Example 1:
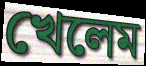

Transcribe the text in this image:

খেলেম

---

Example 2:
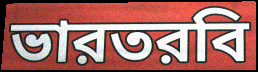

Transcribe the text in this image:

ভারতরবি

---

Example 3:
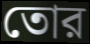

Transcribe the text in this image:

তোর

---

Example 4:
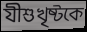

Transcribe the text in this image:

যীশুখৃষ্টকে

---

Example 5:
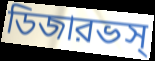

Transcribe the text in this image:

ডিজারভস্